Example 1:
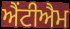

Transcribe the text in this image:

ਐਂਟੀਐਮ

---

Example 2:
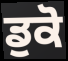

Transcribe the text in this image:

ਡੁਕੋ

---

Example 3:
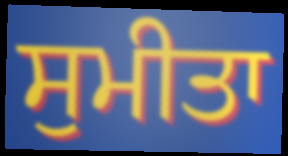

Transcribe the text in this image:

ਸੁਮੀਤਾ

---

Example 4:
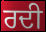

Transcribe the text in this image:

ਰਦੀ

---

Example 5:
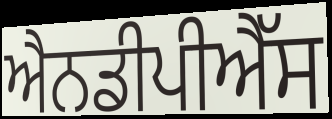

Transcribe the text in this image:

ਐਨਡੀਪੀਐੱਸ